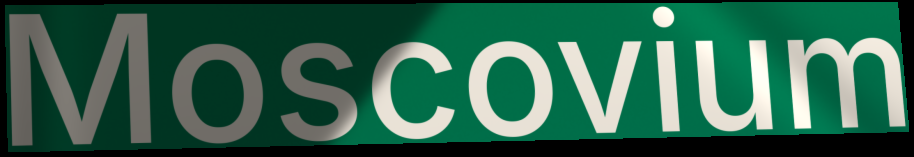
Moscovium